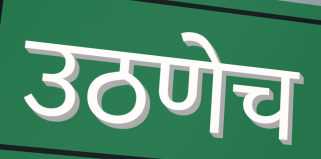
उठणेच